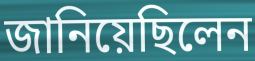
জানিয়েছিলেন